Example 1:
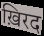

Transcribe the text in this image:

ख़िरद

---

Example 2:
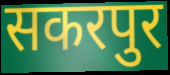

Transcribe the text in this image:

सकरपुर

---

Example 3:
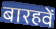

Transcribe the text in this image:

बारहवें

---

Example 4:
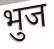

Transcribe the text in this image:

भुज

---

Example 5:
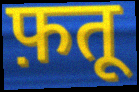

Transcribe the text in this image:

फ़तू